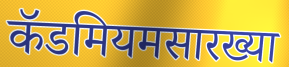
कॅडमियमसारख्या